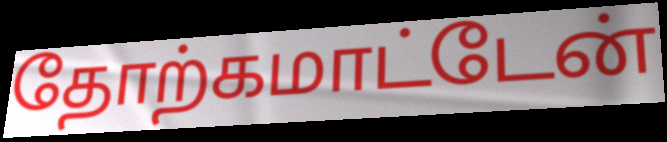
தோற்கமாட்டேன்